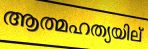
ആത്മഹത്യയില്